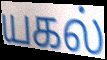
யகல்